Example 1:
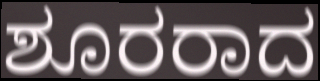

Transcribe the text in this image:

ಶೂರರಾದ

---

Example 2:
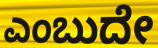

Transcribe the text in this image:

ಎಂಬುದೇ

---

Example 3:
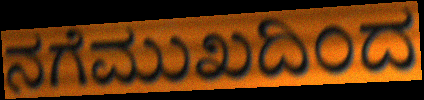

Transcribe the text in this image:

ನಗೆಮುಖದಿಂದ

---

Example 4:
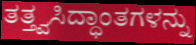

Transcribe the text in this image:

ತತ್ತ್ವಸಿದ್ಧಾಂತಗಳನ್ನು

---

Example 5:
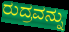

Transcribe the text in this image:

ರುದ್ರವನ್ನು